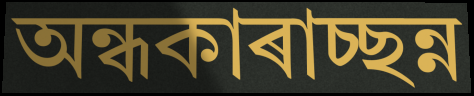
অন্ধকাৰাচ্ছন্ন